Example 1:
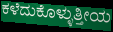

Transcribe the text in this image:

ಕಳೆದುಕೊಳ್ಳುತ್ತೀಯ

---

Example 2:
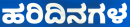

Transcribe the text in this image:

ಹರಿದಿನಗಳ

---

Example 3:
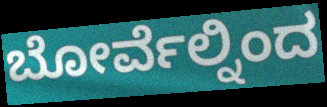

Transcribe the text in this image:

ಬೋರ್ವೆಲ್ನಿಂದ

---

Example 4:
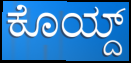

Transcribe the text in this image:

ಕೊಯ್ದ್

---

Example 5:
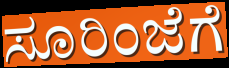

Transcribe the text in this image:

ಸೂರಿಂಜೆಗೆ